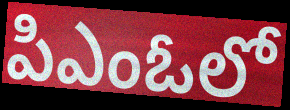
పిఎంఓలో